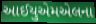
આઈયુએમએલના